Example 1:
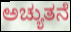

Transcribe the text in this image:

ಅಚ್ಯುತನೆ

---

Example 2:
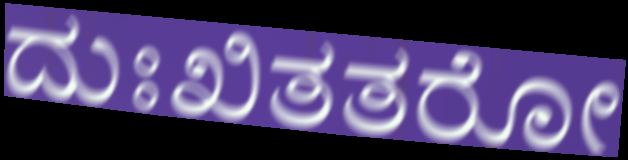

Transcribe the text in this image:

ದುಃಖಿತತರೋ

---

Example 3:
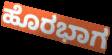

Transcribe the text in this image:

ಹೊರಭಾಗ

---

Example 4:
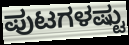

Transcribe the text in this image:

ಪುಟಗಳಷ್ಟು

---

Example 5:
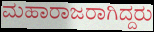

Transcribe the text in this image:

ಮಹಾರಾಜರಾಗಿದ್ದರು